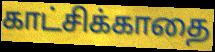
காட்சிக்காதை